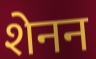
शेनन